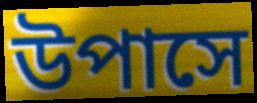
উপাসে